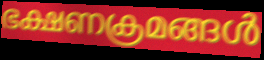
ഭക്ഷണക്രമങ്ങൾ